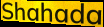
Shahada